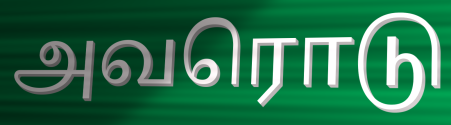
அவரொடு